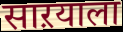
साऱयाला